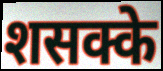
शसक्के